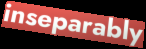
inseparably